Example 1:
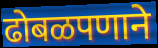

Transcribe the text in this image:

ढोबळपणाने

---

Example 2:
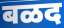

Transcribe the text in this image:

बळद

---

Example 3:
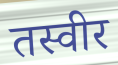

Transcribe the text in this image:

तस्वीर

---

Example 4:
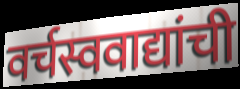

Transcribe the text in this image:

वर्चस्ववाद्यांची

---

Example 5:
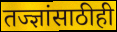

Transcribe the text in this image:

तज्ज्ञांसाठीही